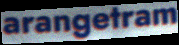
arangetram